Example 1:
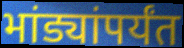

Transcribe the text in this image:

भांड्यांपर्यंत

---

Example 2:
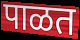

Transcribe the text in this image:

पाळत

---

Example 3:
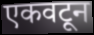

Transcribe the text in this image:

एकवटून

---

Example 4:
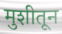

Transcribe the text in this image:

मुशीतून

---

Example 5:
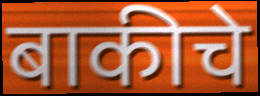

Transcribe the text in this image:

बाकीचे